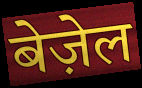
बेज़ेल